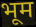
भूम